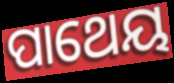
ପାଥେୟ